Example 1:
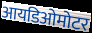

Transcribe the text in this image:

आयडिओमोटर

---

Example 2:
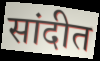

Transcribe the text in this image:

सांदीत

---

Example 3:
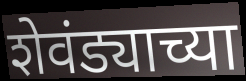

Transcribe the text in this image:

शेवंड्याच्या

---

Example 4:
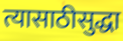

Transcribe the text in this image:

त्यासाठीसुद्धा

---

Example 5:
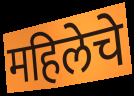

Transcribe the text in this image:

महिलेचे